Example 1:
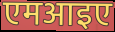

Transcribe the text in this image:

एमआइए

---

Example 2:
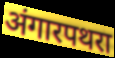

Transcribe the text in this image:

अंगारपथरा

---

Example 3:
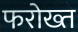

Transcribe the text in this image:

फरोख्‍त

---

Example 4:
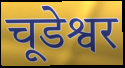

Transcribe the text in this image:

चूडेश्वर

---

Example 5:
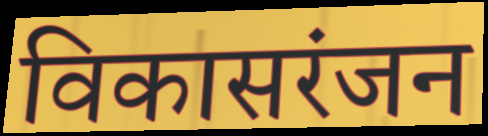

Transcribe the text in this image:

विकासरंजन